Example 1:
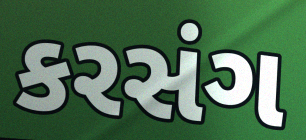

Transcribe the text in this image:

કરસંગ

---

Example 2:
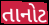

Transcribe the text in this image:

તાનોટ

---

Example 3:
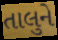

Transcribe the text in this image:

તાલુને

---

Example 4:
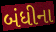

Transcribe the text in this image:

બંધીના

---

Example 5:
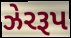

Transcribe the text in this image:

ઝેરરૂપ